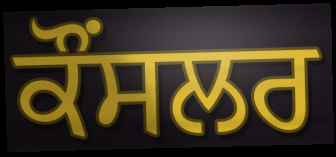
ਕੌੰਸਲਰ